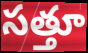
సత్తూ